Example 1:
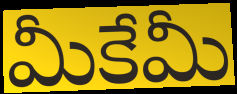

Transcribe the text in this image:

మీకేమీ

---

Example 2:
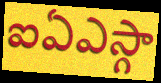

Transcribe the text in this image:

ఐఏఎస్గా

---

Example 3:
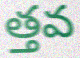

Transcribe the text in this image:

త్తవ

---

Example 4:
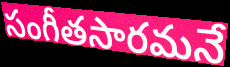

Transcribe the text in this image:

సంగీతసారమనే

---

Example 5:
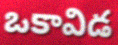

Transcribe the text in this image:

ఒకావిడ